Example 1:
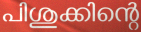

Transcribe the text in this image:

പിശുക്കിന്റെ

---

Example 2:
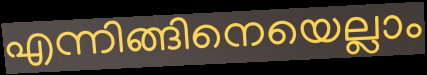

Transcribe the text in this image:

എന്നിങ്ങിനെയെല്ലാം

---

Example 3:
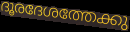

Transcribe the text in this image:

ദൂരദേശത്തേക്കു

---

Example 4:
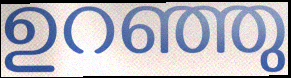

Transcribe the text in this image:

ഉറഞ്ഞു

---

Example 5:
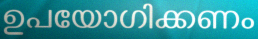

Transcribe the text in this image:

ഉപയോഗിക്കണം